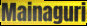
Mainaguri